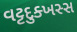
વટ્ટદુક્ખસ્સ